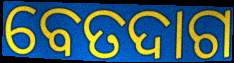
ବେତଦାଗ